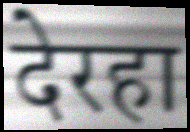
देरहा